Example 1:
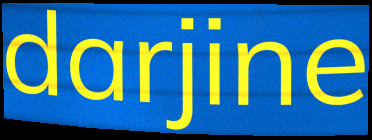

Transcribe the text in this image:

darjine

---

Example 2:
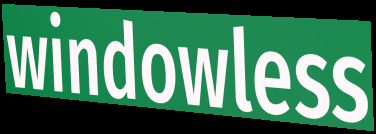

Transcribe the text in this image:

windowless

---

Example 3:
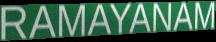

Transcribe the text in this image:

RAMAYANAM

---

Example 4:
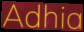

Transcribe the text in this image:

Adhia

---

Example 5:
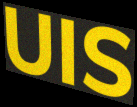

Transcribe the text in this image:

UIS